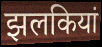
झलकियां